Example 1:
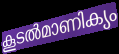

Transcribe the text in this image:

കൂടൽമാണിക്യം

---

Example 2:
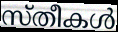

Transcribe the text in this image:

സ്തീകൾ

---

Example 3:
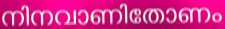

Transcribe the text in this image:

നിനവാണിതോണം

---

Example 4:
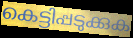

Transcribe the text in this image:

കെട്ടിപ്പടുക്കുക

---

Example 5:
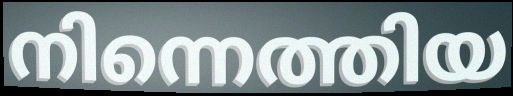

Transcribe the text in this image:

നിന്നെത്തിയ